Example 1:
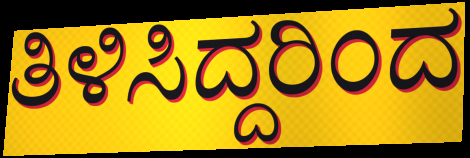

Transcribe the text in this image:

ತಿಳಿಸಿದ್ದರಿಂದ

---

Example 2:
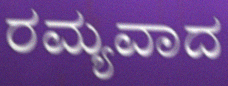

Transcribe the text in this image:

ರಮ್ಯವಾದ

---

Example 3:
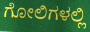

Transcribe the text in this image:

ಗೋಲಿಗಳಲ್ಲಿ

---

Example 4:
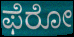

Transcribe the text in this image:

ಫೆರೋ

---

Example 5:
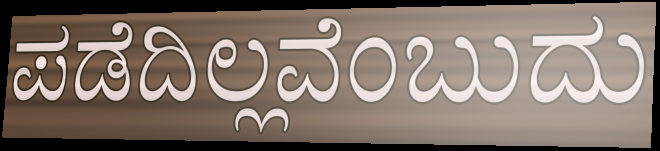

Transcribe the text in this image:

ಪಡೆದಿಲ್ಲವೆಂಬುದು